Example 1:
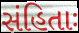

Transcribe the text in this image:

સંહિતાઃ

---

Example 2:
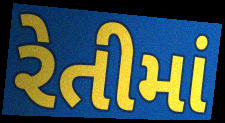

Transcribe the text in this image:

રેતીમાં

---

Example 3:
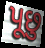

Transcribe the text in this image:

પૂછુ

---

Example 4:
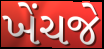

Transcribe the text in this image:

ખેંચજે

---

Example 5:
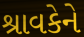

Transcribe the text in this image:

શ્રાવકેને